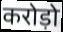
करोड़ो